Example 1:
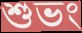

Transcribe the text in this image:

শুভং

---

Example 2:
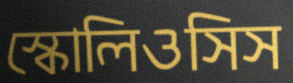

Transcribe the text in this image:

স্কোলিওসিস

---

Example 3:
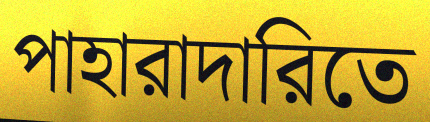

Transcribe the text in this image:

পাহারাদারিতে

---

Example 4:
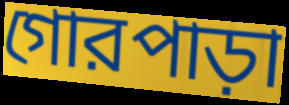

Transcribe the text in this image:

গোরপাড়া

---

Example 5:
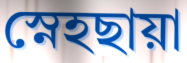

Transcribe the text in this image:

স্নেহছায়া